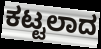
ಕಟ್ಟಲಾದ